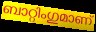
ബാറ്റിംഗുമാണ്